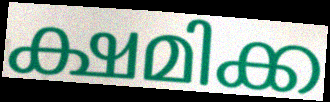
ക്ഷമിക്ക